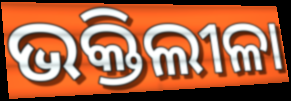
ଭକ୍ତିଲୀଳା